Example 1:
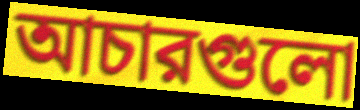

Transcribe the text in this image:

আচারগুলো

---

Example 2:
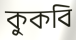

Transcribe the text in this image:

কুকবি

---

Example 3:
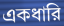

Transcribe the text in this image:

একধারি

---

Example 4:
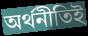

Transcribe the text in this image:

অর্থনীতিই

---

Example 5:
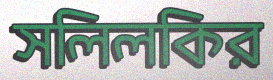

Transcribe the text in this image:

সলিলকির